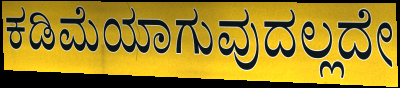
ಕಡಿಮೆಯಾಗುವುದಲ್ಲದೇ